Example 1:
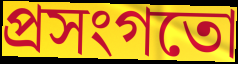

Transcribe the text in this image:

প্ৰসংগতো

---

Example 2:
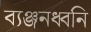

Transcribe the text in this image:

ব্যঞ্জনধ্বনি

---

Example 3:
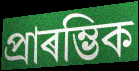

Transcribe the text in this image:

প্ৰাৰম্ভিক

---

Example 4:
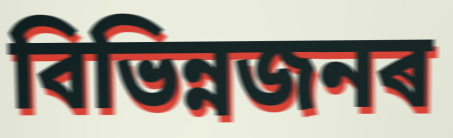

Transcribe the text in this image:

বিভিন্নজনৰ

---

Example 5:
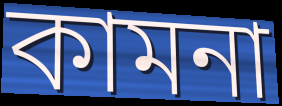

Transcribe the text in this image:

কামনা